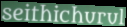
seithichurul